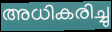
അധികരിച്ചു